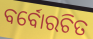
ବର୍ବୋରଚିତ